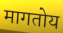
मागतोय